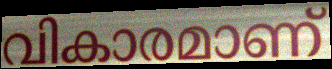
വികാരമാണ്